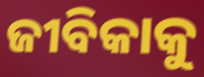
ଜୀବିକାକୁ